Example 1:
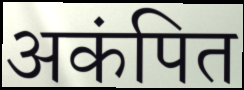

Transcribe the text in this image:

अकंपित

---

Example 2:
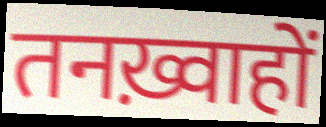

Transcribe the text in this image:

तनख़्वाहों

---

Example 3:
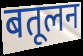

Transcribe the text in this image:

बतूलन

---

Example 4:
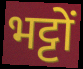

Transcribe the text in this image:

भट्टों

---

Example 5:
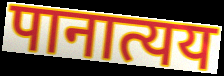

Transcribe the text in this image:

पानात्यय